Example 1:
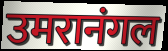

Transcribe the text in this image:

उमरानंगल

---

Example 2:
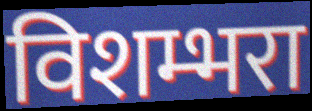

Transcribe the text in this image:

विशम्भरा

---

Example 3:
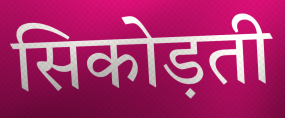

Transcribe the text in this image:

सिकोड़ती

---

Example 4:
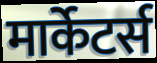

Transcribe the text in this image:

मार्केटर्स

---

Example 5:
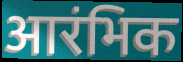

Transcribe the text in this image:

आरंभिक